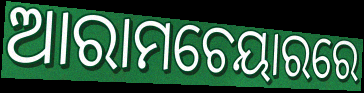
ଆରାମଚେୟାରରେ